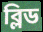
ব্লিড